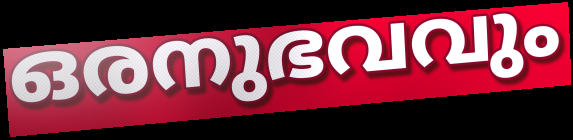
ഒരനുഭവവും